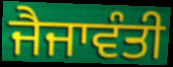
ਜੈਜਾਵੰਤੀ